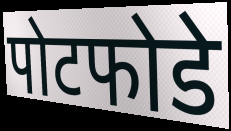
पोटफोडे